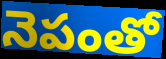
నెపంతో